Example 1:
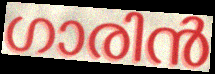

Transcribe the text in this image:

ഗാരിൻ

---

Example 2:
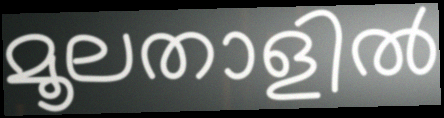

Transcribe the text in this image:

മൂലതാളിൽ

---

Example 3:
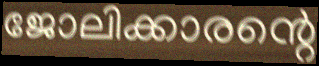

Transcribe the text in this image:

ജോലിക്കാരന്റെ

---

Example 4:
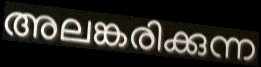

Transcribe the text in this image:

അലങ്കരിക്കുന്ന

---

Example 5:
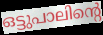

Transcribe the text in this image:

ഒട്ടുപാലിന്റെ